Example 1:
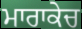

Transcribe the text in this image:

ਮਾਰਾਕੇਚ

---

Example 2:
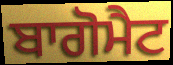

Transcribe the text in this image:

ਬਾਗੋਮੈਟ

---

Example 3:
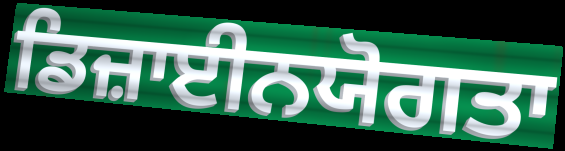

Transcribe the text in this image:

ਡਿਜ਼ਾਈਨਯੋਗਤਾ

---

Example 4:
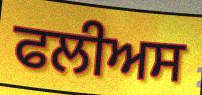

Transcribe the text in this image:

ਫਲੀਅਸ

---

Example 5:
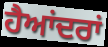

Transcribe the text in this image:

ਹੈਆਂਦਰਾਂ